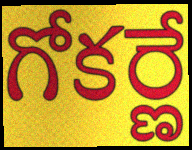
గోకర్ణే